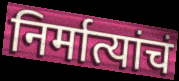
निर्मात्यांचं